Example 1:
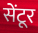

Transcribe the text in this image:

सेंटूर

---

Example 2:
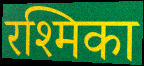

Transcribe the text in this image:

रश्मिका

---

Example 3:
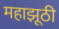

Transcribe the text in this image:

महाझूठी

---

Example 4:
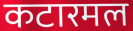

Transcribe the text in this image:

कटारमल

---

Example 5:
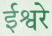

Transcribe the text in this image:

ईश्वरे